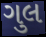
ગુલ